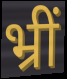
भ्रीं